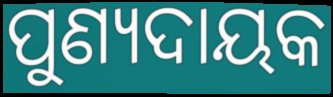
ପୁଣ୍ୟଦାୟକ